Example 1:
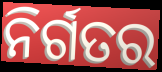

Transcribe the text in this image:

ନିର୍ଗତର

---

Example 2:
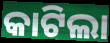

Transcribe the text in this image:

କାଟିଲା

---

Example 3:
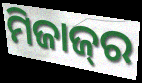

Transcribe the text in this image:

ମିଜାଜ୍‌ର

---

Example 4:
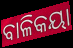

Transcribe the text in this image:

ବାଳିକୟା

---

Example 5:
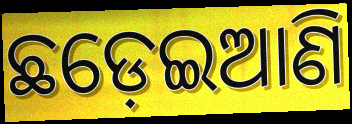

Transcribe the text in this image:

ଛଡ଼େଇଆଣି